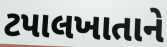
ટપાલખાતાને